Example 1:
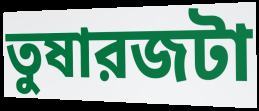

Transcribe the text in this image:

তুষারজটা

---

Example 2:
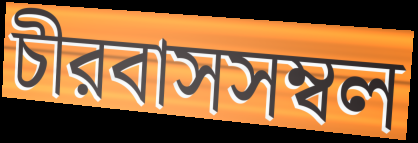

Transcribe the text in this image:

চীরবাসসম্বল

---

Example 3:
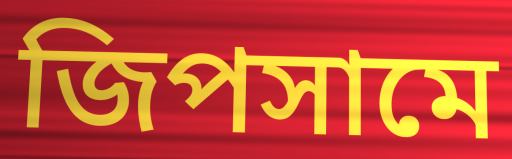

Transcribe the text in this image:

জিপসামে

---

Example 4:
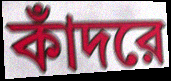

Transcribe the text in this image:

কাঁদরে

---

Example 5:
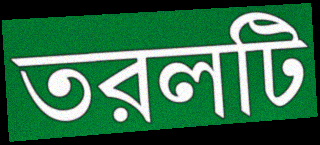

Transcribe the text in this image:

তরলটি